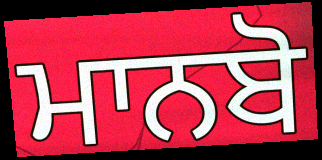
ਮਾਨਬੋ